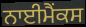
ਨਾਈਮੈਂਕਸ